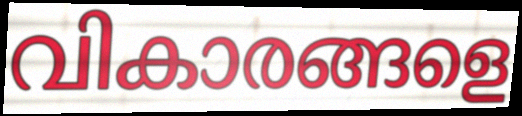
വികാരങ്ങളെ